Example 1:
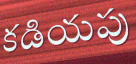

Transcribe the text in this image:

కడియపు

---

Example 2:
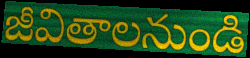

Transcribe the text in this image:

జీవితాలనుండి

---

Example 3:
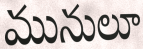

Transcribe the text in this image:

మునులూ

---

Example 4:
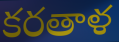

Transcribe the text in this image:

కరతాళ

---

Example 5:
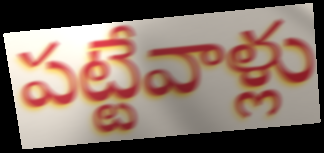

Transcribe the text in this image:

పట్టేవాళ్లు